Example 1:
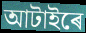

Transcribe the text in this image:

আটাইৰে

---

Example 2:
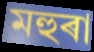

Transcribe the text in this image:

মহুৰা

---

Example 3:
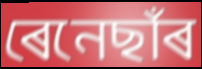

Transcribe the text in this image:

ৰেনেছাঁৰ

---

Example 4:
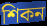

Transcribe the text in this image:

শিকন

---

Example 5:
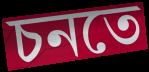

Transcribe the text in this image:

চনতে